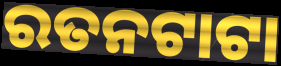
ରତନଟାଟା